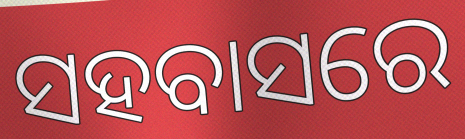
ସହବାସରେ